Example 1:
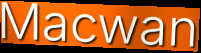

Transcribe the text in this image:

Macwan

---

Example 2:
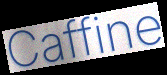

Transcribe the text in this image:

Caffine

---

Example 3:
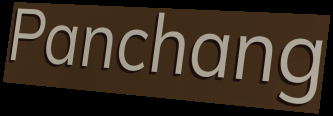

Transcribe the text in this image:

Panchang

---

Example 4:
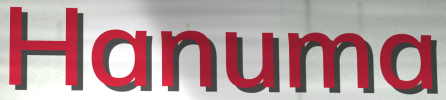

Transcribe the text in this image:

Hanuma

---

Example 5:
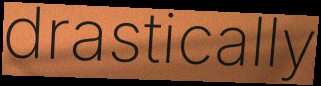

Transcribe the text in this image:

drastically